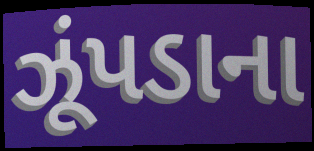
ઝૂંપડાના